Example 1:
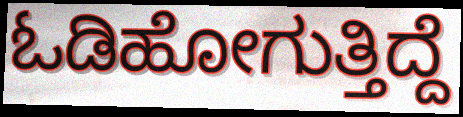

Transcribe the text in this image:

ಓಡಿಹೋಗುತ್ತಿದ್ದೆ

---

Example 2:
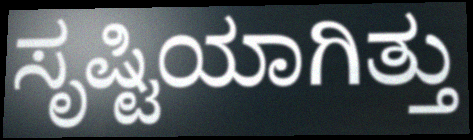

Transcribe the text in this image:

ಸೃಷ್ಟಿಯಾಗಿತ್ತು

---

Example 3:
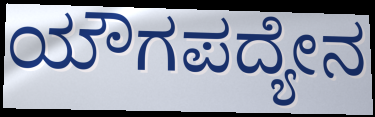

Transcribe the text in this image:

ಯೌಗಪದ್ಯೇನ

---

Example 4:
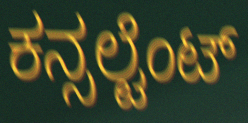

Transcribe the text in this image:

ಕನ್ಸಲ್ಟೆಂಟ್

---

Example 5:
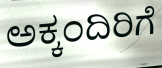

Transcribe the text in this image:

ಅಕ್ಕಂದಿರಿಗೆ